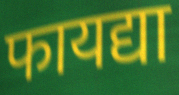
फायद्या